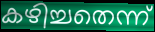
കഴിച്ചതെന്ന്